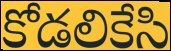
కోడలికేసి